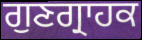
ਗੁਣਗ੍ਰਾਹਕ